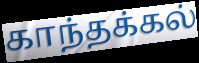
காந்தக்கல்